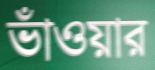
ভাঁওয়ার